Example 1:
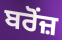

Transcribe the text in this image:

ਬਰੋਂਜ਼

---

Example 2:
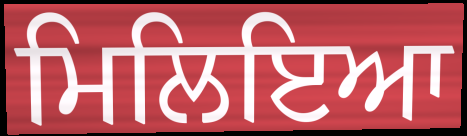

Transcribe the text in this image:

ਮਿਲਿਇਆ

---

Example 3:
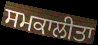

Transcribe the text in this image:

ਸਮਕਾਲੀਤਾ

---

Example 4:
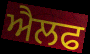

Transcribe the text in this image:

ਐਲਫ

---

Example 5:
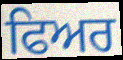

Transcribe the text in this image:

ਫਿਅਰ